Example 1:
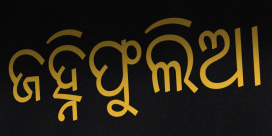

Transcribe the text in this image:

ଜହ୍ନିଫୁଲିଆ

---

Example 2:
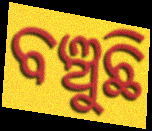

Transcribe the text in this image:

ବଞ୍ଚୁଛି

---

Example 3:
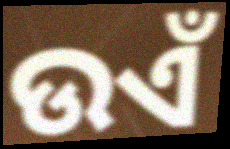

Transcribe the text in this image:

ଉଏଁ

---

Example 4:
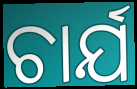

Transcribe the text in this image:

ଚାର୍ଯ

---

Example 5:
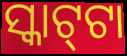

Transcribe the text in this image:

ସ୍କାଟ୍‌ଟା